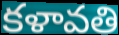
కళావతి